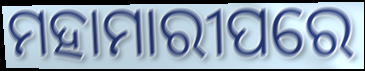
ମହାମାରୀପରେ